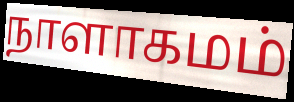
நாளாகமம்